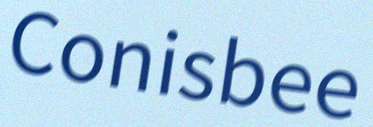
Conisbee